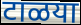
टाळया